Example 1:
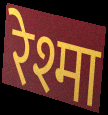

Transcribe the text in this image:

रेश्मा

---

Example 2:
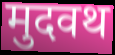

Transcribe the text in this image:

मुदवथ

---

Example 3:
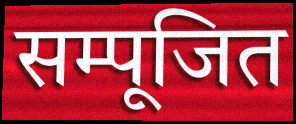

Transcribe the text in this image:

सम्पूजित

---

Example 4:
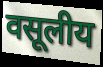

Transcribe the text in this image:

वसूलीय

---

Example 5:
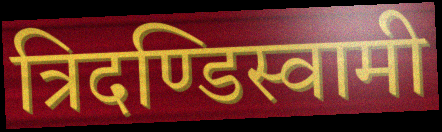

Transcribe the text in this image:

त्रिदण्डिस्वामी